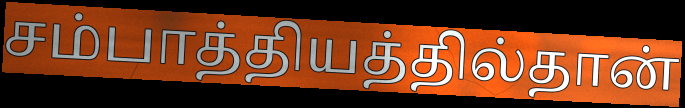
சம்பாத்தியத்தில்தான்